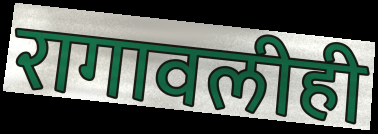
रागावलीही